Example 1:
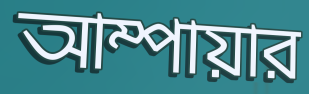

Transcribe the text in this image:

আম্পায়ার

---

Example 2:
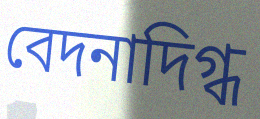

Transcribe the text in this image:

বেদনাদিগ্ধ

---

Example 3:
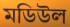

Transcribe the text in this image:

মডিউল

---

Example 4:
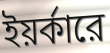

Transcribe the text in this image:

ইয়র্কারে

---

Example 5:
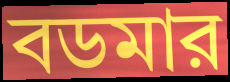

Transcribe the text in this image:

বডমার